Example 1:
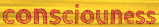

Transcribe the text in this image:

consciouness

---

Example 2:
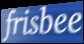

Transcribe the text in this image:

frisbee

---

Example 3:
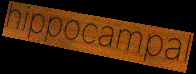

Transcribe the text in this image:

hippocampal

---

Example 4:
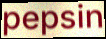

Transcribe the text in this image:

pepsin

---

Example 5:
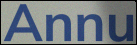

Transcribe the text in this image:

Annu